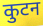
कुटन